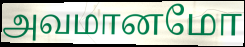
அவமானமோ